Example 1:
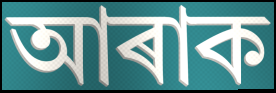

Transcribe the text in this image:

আৰাক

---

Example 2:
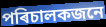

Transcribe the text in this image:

পৰিচালকজনে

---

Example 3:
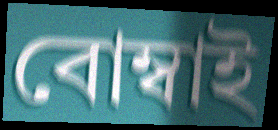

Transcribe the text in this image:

বোম্বাই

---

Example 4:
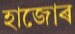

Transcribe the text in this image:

হাজোৰ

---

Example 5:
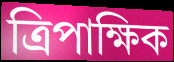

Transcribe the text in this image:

ত্ৰিপাক্ষিক